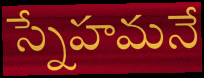
స్నేహమనే